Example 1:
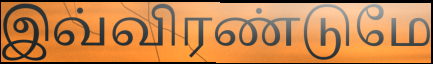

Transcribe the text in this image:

இவ்விரண்டுமே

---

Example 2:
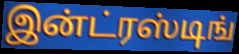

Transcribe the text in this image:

இன்ட்ரஸ்டிங்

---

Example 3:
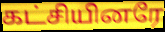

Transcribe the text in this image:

கட்சியினரே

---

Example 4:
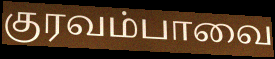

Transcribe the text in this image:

குரவம்பாவை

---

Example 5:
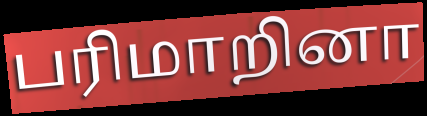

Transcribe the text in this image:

பரிமாறினா